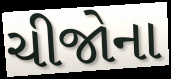
ચીજોના